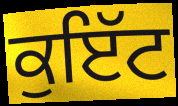
ਕੁਇੱਟ